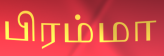
பிரம்மா